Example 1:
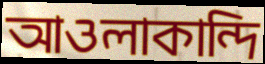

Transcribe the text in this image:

আওলাকান্দি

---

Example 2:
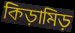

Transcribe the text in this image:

কিড়ামিড়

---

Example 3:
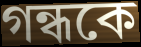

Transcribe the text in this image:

গন্ধকে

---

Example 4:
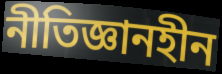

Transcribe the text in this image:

নীতিজ্ঞানহীন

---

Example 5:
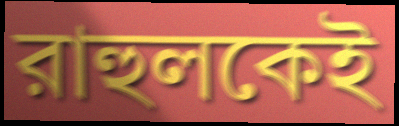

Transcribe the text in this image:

রাহুলকেই